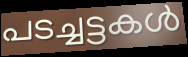
പടച്ചട്ടകൾ